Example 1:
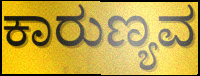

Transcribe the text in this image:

ಕಾರುಣ್ಯವ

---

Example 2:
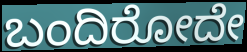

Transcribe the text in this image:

ಬಂದಿರೋದೇ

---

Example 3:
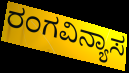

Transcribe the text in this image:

ರಂಗವಿನ್ಯಾಸ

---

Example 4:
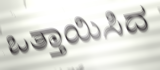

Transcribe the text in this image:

ಒತ್ತಾಯಿಸಿದ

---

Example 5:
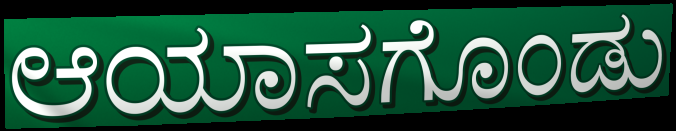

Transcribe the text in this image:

ಆಯಾಸಗೊಂಡು